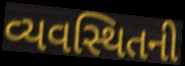
વ્યવસ્થિતની